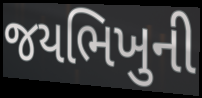
જયભિખુની